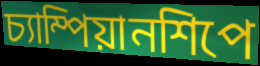
চ্যাম্পিয়ানশিপে